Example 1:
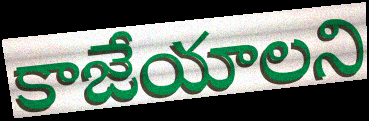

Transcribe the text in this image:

కాజేయాలని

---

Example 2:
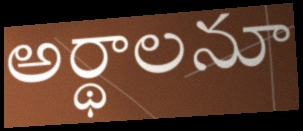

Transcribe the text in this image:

అర్థాలనూ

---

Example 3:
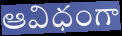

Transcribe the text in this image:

ఆవిధంగా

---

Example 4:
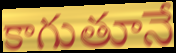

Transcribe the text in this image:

కాగుతూనే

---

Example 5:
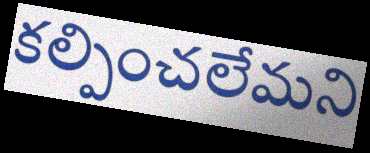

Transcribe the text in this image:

కల్పించలేమని